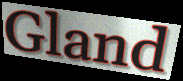
Gland